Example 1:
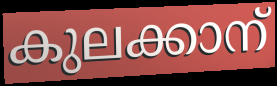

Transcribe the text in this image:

കുലക്കാന്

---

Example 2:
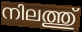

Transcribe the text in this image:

നിലത്തു്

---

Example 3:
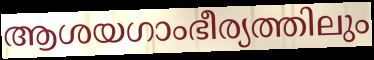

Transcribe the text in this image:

ആശയഗാംഭീര്യത്തിലും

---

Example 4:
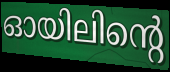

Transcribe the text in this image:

ഓയിലിന്റെ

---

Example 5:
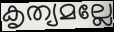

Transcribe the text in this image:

കൃത്യമല്ലേ